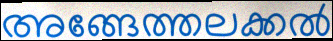
അങ്ങേത്തലക്കൽ